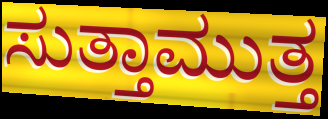
ಸುತ್ತಾಮುತ್ತ